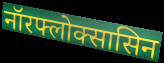
नॉरफ्लोक्सासिन